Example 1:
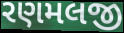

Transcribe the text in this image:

રણમલજી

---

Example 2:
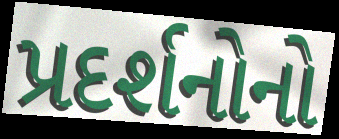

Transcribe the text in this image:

પ્રદર્શનોનો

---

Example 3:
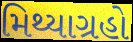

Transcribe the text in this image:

મિથ્યાગ્રહો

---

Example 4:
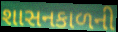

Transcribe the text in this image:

શાસનકાળની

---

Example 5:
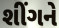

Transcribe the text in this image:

શીંગને